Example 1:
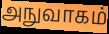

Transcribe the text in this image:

அநுவாகம்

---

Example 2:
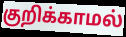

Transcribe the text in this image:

குறிக்காமல்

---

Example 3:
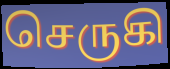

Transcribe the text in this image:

செருகி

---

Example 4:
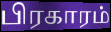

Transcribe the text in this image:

பிரகாரம்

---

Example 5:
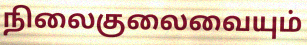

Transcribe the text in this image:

நிலைகுலைவையும்